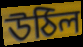
উঠিল